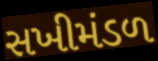
સખીમંડળ